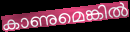
കാണുമെങ്കിൽ